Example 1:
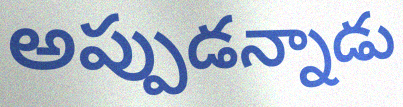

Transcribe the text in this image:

అప్పుడన్నాడు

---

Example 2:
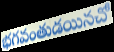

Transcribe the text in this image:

భగవంతుడయినచో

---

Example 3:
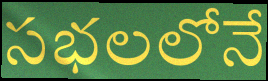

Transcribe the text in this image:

సభలలోనే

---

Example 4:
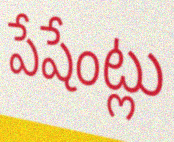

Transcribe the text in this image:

పేషేంట్లు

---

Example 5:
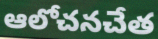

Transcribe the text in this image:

ఆలోచనచేత